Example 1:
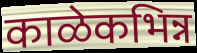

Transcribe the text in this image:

काळेकभिन्न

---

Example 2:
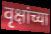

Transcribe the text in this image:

वृक्षांच्या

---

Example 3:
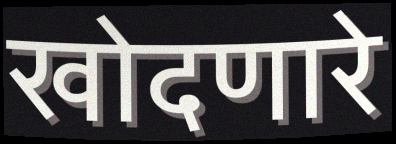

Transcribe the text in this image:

खोदणारे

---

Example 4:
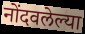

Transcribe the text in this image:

नोंदवलेल्या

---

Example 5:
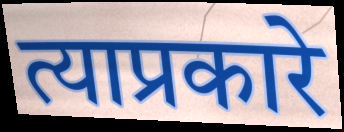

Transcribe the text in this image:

त्याप्रकारे